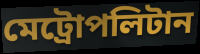
মেট্রোপলিটান